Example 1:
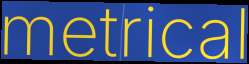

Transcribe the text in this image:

metrical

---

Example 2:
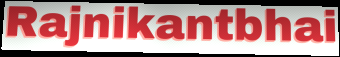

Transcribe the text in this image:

Rajnikantbhai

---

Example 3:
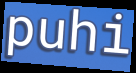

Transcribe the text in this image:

puhi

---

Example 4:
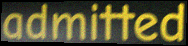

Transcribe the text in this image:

admitted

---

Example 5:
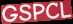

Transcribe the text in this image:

GSPCL